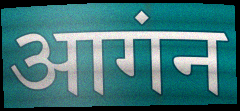
आगंन